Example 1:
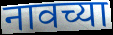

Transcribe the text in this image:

नावच्या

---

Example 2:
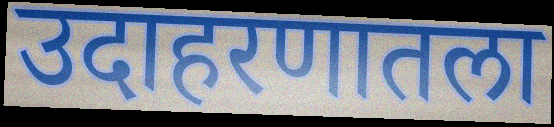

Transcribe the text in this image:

उदाहरणातला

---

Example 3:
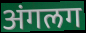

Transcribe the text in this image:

अंगलग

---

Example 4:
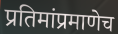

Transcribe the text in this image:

प्रतिमांप्रमाणेच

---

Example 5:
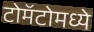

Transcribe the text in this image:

टोमॅटोमध्ये